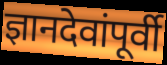
ज्ञानदेवांपूर्वी